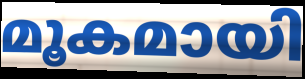
മൂകമായി